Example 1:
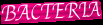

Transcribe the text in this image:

BACTERIA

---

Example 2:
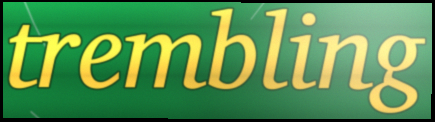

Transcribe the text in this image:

trembling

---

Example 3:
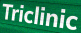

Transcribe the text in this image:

Triclinic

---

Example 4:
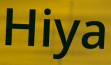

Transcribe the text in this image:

Hiya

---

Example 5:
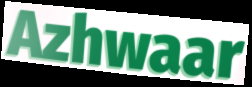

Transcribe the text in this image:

Azhwaar